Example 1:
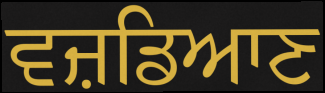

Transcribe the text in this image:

ਵਜ਼ਡਿਆਣ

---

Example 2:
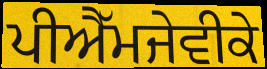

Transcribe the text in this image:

ਪੀਐੱਮਜੇਵੀਕੇ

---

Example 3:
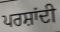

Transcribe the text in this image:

ਪਰਸ਼ਾਂਦੀ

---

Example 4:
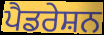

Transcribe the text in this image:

ਪੈਡਰੇਸ਼ਨ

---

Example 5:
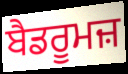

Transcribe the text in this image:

ਬੈਡਰੂਮਜ਼